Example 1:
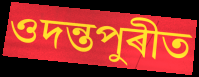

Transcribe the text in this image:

ওদন্তপুৰীত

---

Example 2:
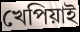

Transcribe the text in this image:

খেপিয়াই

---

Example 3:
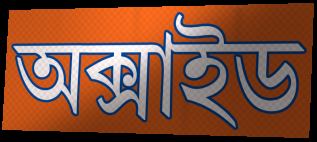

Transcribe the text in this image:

অক্সাইড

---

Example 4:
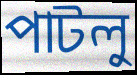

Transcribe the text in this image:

পাটলু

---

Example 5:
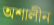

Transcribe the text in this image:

অশালীন